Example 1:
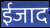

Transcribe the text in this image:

ईजाद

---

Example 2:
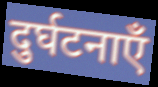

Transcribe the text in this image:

दुर्घटनाएँ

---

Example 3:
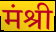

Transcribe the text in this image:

मंश्री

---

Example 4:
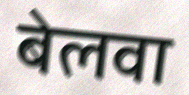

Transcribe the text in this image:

बेलवा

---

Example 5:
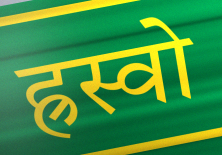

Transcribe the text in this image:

ह्रस्वो